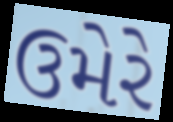
ઉમેરે